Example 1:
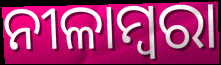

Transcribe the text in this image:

ନୀଳାମ୍ବରା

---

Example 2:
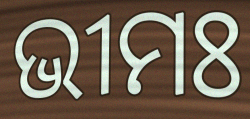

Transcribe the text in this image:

ଭୀମଃ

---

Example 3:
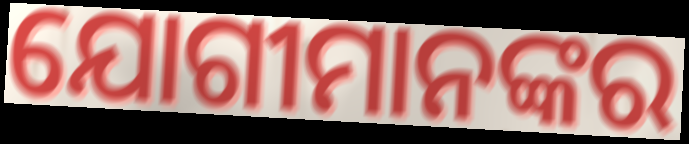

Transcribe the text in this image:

ଯୋଗୀମାନଙ୍କର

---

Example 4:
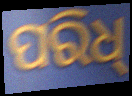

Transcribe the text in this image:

ପରିଧ୍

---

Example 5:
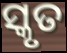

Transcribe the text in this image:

ସ୍କୃତ